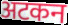
अटकन